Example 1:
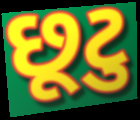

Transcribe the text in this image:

છૂટુ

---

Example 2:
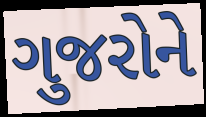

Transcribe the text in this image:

ગુજરોને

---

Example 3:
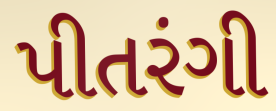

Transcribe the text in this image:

પીતરંગી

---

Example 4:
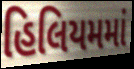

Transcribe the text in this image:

હિલિયમમાં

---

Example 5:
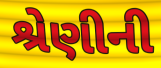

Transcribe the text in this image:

શ્રેણીની